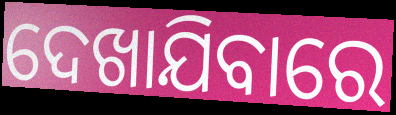
ଦେଖାଯିବାରେ